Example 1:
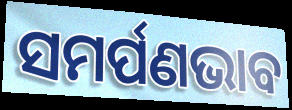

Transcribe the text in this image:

ସମର୍ପଣଭାବ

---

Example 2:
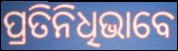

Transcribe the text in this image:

ପ୍ରତିନିଧିଭାବେ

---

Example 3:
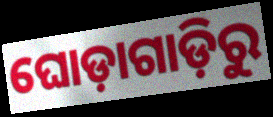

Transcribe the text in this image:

ଘୋଡ଼ାଗାଡ଼ିରୁ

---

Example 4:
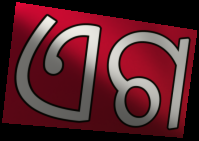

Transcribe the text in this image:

ଏଗ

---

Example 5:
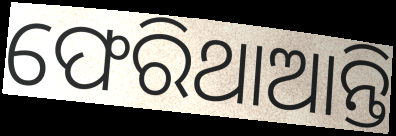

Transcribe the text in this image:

ଫେରିଥାଆନ୍ତି